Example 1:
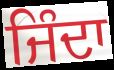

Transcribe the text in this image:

ਜਿੰਦਾ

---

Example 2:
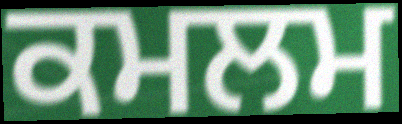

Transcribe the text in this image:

ਕਮਲਮ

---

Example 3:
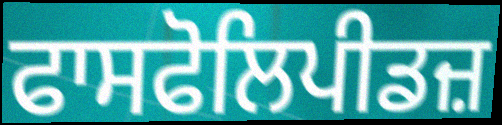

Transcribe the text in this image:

ਫਾਸਫੋਲਿਪੀਡਜ਼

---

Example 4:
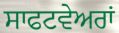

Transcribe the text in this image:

ਸਾਫਟਵੇਅਰਾਂ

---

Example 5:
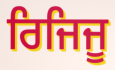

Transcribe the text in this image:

ਰਿਜਿਜੂ